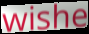
wishe